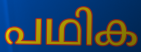
പഥിക